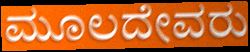
ಮೂಲದೇವರು